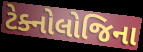
ટેક્નોલોજિના